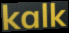
kalk